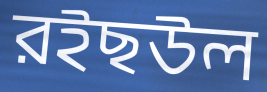
রইছউল